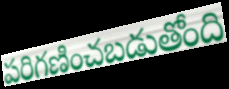
పరిగణించబడుతోంది